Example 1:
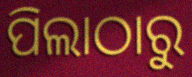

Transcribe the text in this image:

ପିଲାଠାରୁ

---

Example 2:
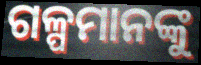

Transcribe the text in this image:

ଗଳ୍ପମାନଙ୍କୁ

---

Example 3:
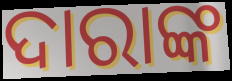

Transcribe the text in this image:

ଦାରାଙ୍କ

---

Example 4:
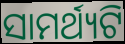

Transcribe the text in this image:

ସାମର୍ଥ୍ୟଟି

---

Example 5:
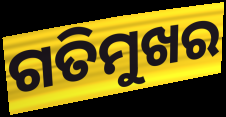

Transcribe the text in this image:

ଗତିମୁଖର